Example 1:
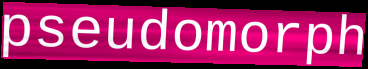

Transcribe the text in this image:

pseudomorph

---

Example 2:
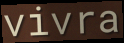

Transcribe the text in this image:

vivra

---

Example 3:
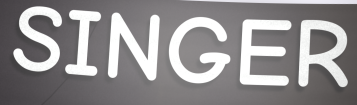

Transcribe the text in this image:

SINGER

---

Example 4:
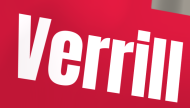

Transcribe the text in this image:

Verrill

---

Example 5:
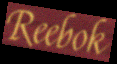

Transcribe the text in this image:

Reebok